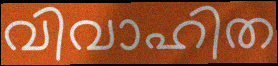
വിവാഹിത